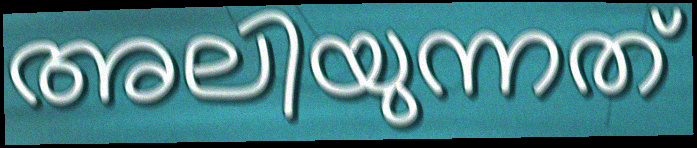
അലിയുന്നത്